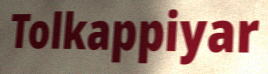
Tolkappiyar